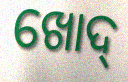
ଖୋଦ୍